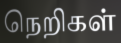
நெறிகள்